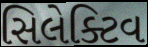
સિલેક્ટિવ